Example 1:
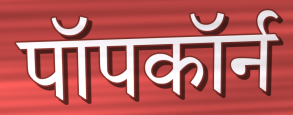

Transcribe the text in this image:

पॉपकॉर्न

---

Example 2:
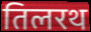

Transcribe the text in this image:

तिलरथ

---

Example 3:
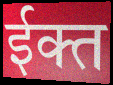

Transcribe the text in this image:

ईक्त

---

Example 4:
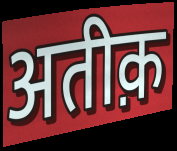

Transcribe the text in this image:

अतीक़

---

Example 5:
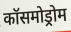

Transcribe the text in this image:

कॉसमोड्रोम